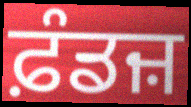
ਫ਼ੰਡਜ਼